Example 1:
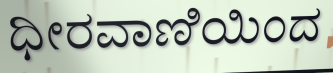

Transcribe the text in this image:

ಧೀರವಾಣಿಯಿಂದ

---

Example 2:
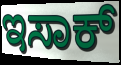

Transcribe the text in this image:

ಇಸಾಕ್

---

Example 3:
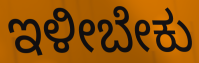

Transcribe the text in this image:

ಇಳೀಬೇಕು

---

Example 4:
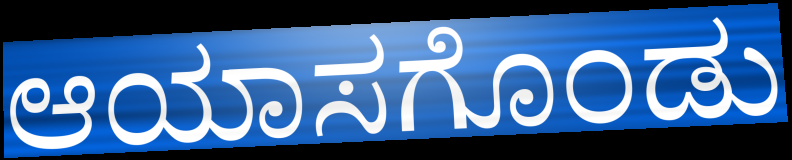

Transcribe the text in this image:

ಆಯಾಸಗೊಂಡು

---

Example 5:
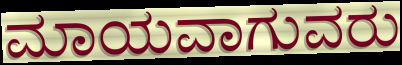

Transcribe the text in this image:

ಮಾಯವಾಗುವರು